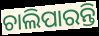
ଚାଲିପାରନ୍ତି